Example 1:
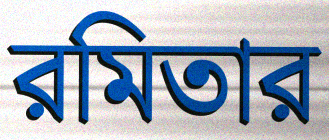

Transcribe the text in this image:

রমিতার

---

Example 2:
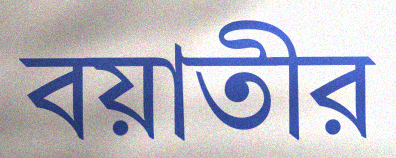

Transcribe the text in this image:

বয়াতীর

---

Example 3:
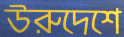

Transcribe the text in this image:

উরুদেশে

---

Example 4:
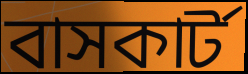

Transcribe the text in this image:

বাসকার্ট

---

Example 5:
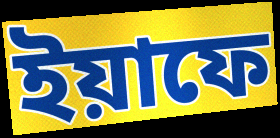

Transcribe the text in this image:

ইয়াফে